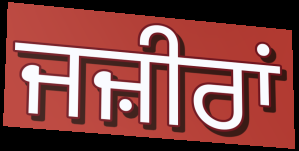
ਜਜ਼ੀਰਾਂ